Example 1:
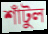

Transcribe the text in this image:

শাঁটুল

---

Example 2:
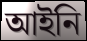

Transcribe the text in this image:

আইনি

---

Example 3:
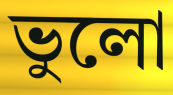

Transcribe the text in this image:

ভুলো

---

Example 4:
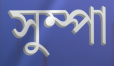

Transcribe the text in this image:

সুম্পা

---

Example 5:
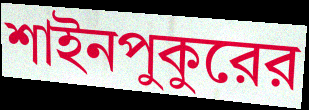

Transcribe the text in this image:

শাইনপুকুরের